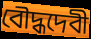
বৌদ্ধদেবী